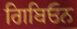
ਗਿਬਿਓਨ